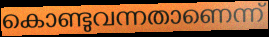
കൊണ്ടുവന്നതാണെന്ന്